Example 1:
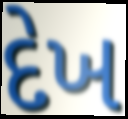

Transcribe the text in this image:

દેખ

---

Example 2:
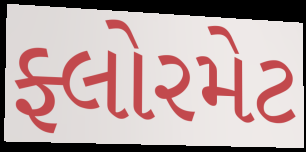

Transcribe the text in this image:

ફ્લોરમેટ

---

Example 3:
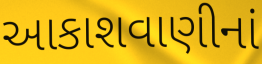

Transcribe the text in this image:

આકાશવાણીનાં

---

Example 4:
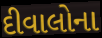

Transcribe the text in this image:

દીવાલોના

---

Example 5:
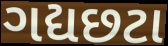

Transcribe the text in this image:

ગદ્યછટા